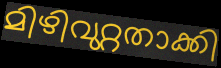
മിഴിവുറ്റതാക്കി